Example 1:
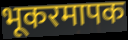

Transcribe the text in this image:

भूकरमापक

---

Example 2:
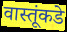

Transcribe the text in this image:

वास्तूंकडे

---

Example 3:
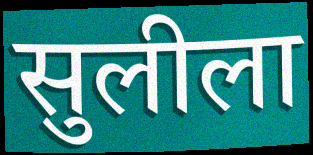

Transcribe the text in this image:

सुलीला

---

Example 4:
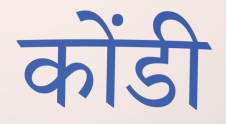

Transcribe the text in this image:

कोंडी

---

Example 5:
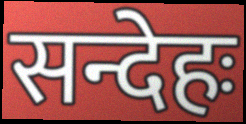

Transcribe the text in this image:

सन्देहः